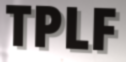
TPLF